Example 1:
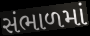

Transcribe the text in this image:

સંભાળમાં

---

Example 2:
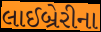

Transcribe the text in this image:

લાઈબ્રેરીના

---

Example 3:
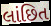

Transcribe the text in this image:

લાંછિત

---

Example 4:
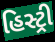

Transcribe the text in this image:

હિસ્ટ્રી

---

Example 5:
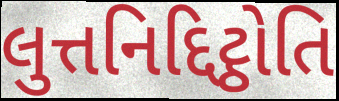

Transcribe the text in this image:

લુત્તનિદ્દિટ્ઠોતિ